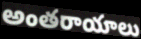
అంతరాయాలు